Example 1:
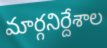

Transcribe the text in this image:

మార్గనిర్దేశాల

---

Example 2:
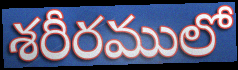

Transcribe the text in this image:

శరీరములో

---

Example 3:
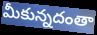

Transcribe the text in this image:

మీకున్నదంతా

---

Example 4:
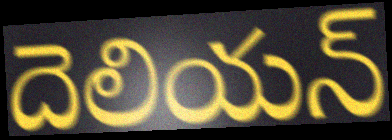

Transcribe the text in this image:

దెలియన్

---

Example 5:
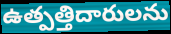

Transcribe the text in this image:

ఉత్పత్తిదారులను